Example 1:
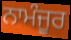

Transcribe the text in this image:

ਨਾਮੰਜੂਰ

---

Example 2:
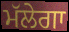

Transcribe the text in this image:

ਮੱਲੇਗਾ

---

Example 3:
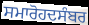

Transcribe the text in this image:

ਸਮਾਰੋਹਦਸੰਬਰ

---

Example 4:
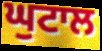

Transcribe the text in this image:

ਘੁਟਾਲ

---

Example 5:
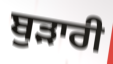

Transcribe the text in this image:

ਬੁੜਾਰੀ